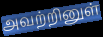
அவற்றினுள்